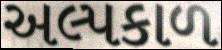
અલ્પકાળ